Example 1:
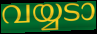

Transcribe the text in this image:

വയ്യടാ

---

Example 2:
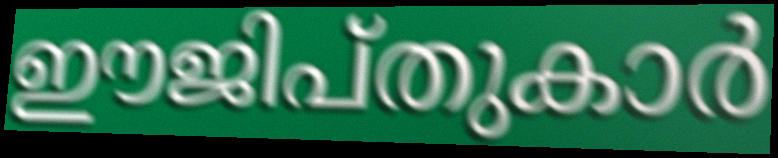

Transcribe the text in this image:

ഈജിപ്തുകാർ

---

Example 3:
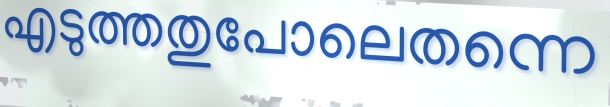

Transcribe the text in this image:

എടുത്തതുപോലെതന്നെ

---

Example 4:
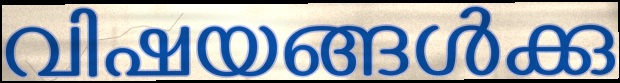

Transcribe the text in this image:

വിഷയങ്ങൾക്കു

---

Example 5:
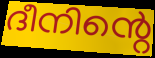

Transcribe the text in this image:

ദീനിന്റെ